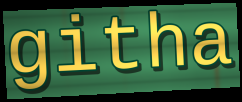
githa